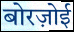
बोरज़ोई